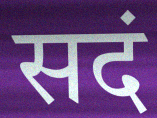
सदं